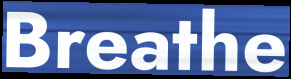
Breathe